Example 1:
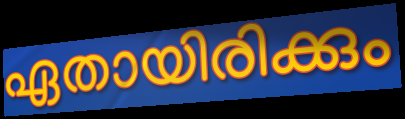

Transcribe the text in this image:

ഏതായിരിക്കും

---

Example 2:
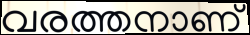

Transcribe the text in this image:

വരത്തനാണ്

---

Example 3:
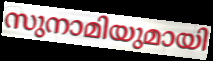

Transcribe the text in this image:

സുനാമിയുമായി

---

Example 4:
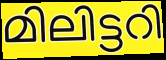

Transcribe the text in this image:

മിലിട്ടറി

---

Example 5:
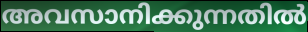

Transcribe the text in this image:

അവസാനിക്കുന്നതിൽ